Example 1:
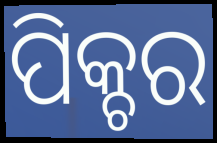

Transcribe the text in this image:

ପିକ୍ଚର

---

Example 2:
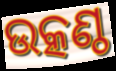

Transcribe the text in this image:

ଉତ୍କଣ୍ଠ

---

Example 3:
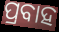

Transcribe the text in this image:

ପ୍ରବାହ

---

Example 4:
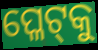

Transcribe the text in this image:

ପ୍ଳେଟ୍‌କୁ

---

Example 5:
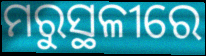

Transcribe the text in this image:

ମରୁସ୍ଥଳୀରେ